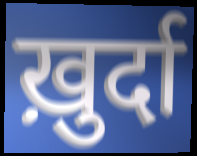
ख़ुर्दा